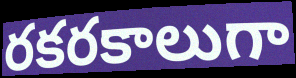
రకరకాలుగా